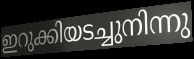
ഇറുക്കിയടച്ചുനിന്നു